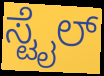
ಸ್ಟೈಲ್